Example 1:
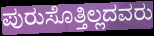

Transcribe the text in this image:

ಪುರುಸೊತ್ತಿಲ್ಲದವರು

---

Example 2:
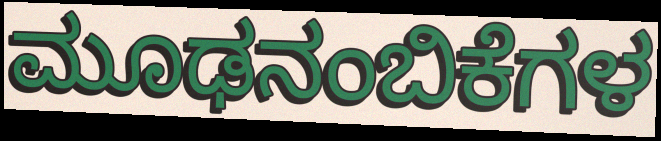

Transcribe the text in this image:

ಮೂಢನಂಬಿಕೆಗಳ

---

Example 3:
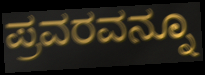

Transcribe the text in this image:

ಪ್ರವರವನ್ನೂ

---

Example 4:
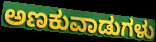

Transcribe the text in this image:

ಅಣಕುವಾಡುಗಳು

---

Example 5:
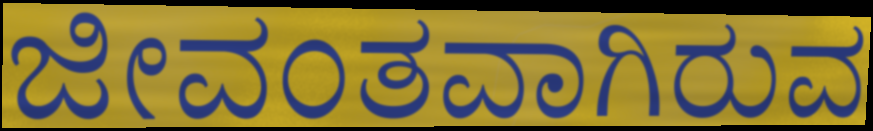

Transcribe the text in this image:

ಜೀವಂತವಾಗಿರುವ